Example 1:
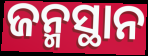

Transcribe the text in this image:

ଜନ୍ମସ୍ଥାନ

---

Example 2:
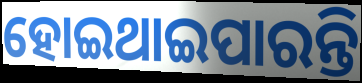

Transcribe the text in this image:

ହୋଇଥାଇପାରନ୍ତି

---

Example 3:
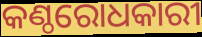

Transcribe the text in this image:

କଣ୍ଠରୋଧକାରୀ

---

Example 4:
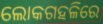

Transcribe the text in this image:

ଲୋକଗହଳିରେ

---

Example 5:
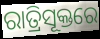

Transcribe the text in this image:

ରାତ୍ରିସୂକ୍ତରେ